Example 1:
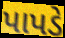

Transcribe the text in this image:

પાપડે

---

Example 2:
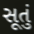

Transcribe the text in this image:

સૂતું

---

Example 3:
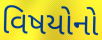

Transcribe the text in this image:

વિષયોનો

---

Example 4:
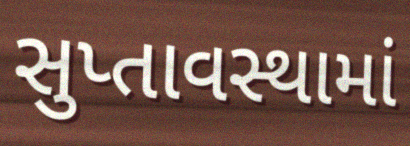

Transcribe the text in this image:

સુપ્તાવસ્થામાં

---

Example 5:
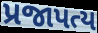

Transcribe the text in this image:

પ્રજાપત્ય